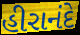
હીરાનંદે